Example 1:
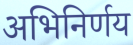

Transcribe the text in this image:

अभिनिर्णय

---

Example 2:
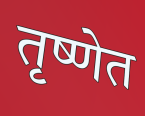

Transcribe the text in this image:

तृष्णेत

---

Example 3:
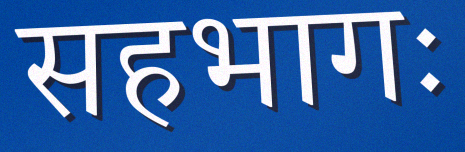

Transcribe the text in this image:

सहभागः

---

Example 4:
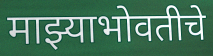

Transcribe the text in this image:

माझ्याभोवतीचे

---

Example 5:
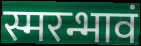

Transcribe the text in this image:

स्मरन्भावं